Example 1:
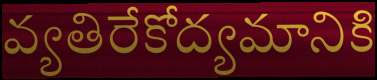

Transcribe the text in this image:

వ్యతిరేకోద్యమానికి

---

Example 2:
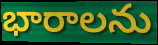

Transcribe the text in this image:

భారాలను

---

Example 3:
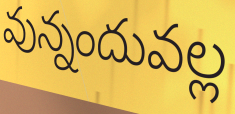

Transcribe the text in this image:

వున్నందువల్ల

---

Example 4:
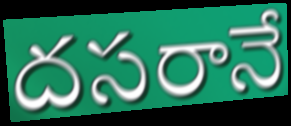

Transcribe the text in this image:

దసరానే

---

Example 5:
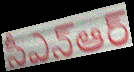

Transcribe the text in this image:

సీఎన్ఆర్